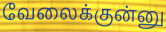
வேலைக்குன்னு